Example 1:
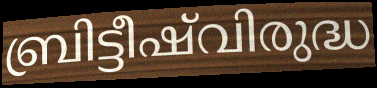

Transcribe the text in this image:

ബ്രിട്ടീഷ്‌വിരുദ്ധ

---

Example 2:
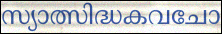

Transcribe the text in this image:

സ്യാത്സിദ്ധകവചോ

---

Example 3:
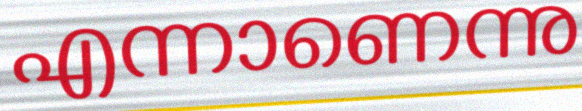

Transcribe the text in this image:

എന്നാണെന്നു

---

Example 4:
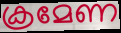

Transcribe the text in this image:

ക്രമേണ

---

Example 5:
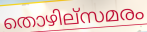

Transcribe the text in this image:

തൊഴില്സമരം